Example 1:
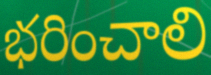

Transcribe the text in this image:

భరించాలి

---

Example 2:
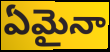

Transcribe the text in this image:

ఏమైనా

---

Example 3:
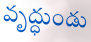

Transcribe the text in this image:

వృద్ధుండు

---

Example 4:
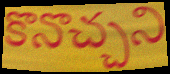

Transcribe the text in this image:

కొనొచ్చని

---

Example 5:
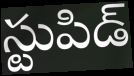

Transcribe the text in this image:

స్టుపిడ్